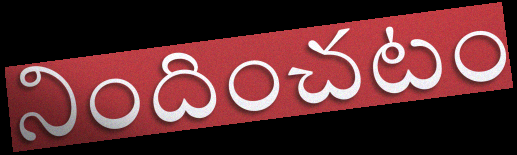
నిందించటం